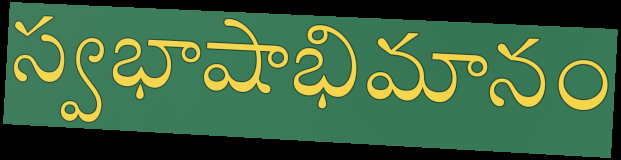
స్వభాషాభిమానం